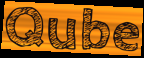
Qube